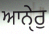
ਆਨੇੑਰੁ